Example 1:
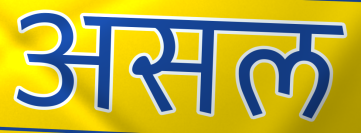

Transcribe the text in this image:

असल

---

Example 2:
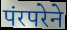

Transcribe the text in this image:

पंरपरेने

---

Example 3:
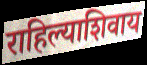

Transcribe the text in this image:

राहिल्याशिवाय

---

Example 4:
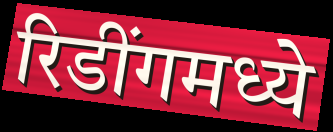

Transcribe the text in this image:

रिडींगमध्ये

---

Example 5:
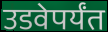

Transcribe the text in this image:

उडवेपर्यंत